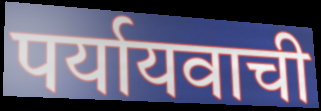
पर्यायवाची